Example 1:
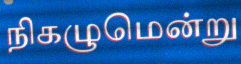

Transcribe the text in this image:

நிகழுமென்று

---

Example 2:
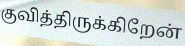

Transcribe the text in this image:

குவித்திருக்கிறேன்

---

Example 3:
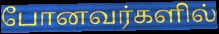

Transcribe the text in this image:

போனவர்களில்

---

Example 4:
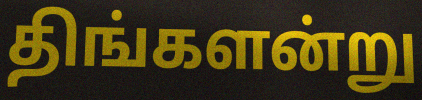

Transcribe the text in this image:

திங்களன்று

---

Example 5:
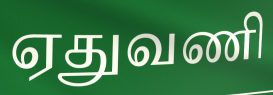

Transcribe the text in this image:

ஏதுவணி